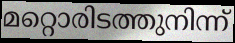
മറ്റൊരിടത്തുനിന്ന്